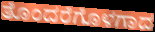
ತೊಂದರೆಗೊಳಗಾದ